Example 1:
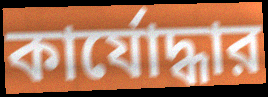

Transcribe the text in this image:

কার্যোদ্ধার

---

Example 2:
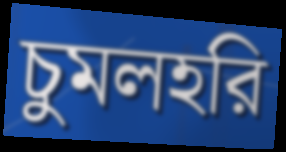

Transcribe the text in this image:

চুমলহরি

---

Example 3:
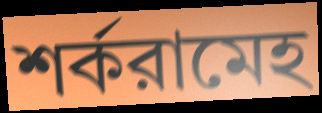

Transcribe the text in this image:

শর্করামেহ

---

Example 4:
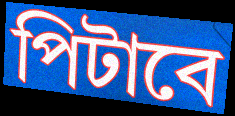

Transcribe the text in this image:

পিটাবে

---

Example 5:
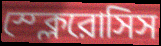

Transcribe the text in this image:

স্ক্লেরোসিস